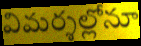
విమర్శల్లోనూ